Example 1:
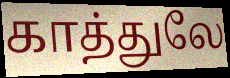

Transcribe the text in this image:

காத்துலே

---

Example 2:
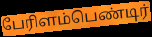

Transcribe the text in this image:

பேரிளம்பெண்டிர்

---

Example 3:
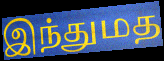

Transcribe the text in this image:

இந்துமத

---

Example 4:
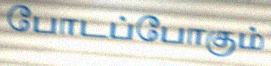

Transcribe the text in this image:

போடப்போகும்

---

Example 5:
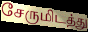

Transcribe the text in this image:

சேருமிடத்து